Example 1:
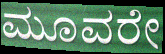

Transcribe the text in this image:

ಮೂವರೇ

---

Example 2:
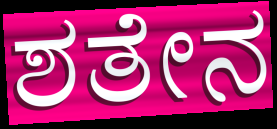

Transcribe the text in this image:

ಶತೇನ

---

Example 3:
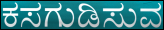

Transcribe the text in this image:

ಕಸಗುಡಿಸುವ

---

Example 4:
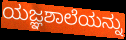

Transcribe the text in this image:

ಯಜ್ಞಶಾಲೆಯನ್ನು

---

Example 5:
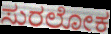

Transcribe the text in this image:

ಸುರಲೋಕ